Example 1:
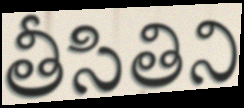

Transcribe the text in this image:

తీసితిని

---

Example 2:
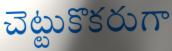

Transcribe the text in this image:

చెట్టుకొకరుగా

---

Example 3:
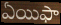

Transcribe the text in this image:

ఏయిఫా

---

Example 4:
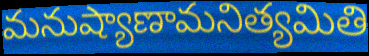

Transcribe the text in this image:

మనుష్యాణామనిత్యమితి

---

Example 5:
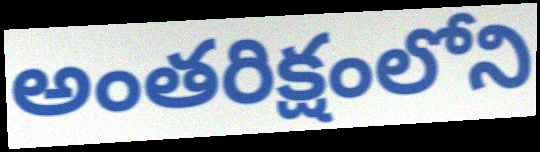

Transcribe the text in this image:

అంతరిక్షంలోని